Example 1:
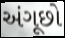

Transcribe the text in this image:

અંગૂછો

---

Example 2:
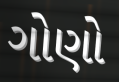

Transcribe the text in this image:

ગોણો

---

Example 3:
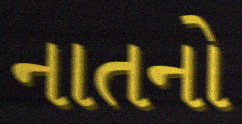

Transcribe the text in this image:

નાતનો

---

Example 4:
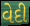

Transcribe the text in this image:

વેદી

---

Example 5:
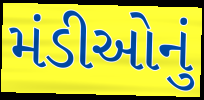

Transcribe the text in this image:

મંડીઓનું